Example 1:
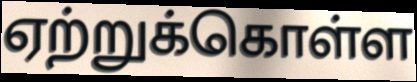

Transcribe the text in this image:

ஏற்றுக்கொள்ள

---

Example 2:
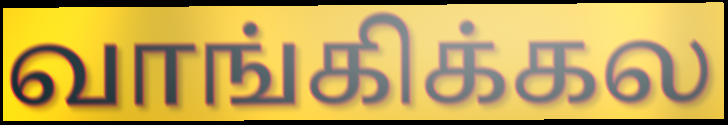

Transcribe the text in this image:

வாங்கிக்கல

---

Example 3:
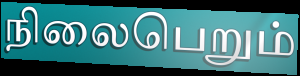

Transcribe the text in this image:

நிலைபெறும்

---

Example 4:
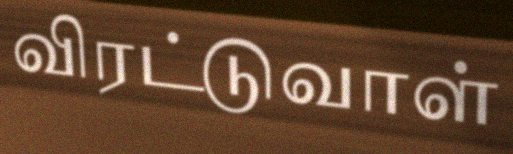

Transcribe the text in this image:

விரட்டுவாள்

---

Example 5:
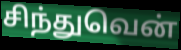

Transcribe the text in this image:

சிந்துவென்